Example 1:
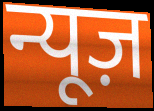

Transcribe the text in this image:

न्‍यूज़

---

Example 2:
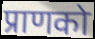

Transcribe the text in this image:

प्राणको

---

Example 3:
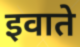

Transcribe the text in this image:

इवाते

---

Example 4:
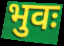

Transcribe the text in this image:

भुवः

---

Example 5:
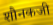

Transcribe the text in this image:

शौनकजी